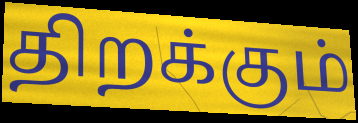
திறக்கும்